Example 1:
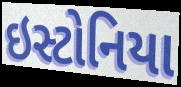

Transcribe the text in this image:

ઇસ્ટોનિયા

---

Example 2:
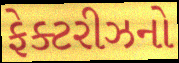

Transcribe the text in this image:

ફેક્ટરીઝનો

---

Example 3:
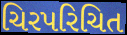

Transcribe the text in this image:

ચિરપરિચિત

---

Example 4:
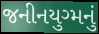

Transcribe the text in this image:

જનીનયુગ્મનું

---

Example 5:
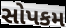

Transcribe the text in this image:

સોપકમ